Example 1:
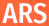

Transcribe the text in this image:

ARS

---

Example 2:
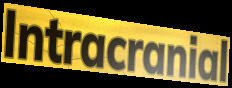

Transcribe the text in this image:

Intracranial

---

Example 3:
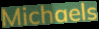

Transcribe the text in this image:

Michaels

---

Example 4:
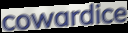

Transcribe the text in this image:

cowardice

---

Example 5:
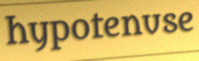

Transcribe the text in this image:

hypotenuse